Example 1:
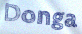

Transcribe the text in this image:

Donga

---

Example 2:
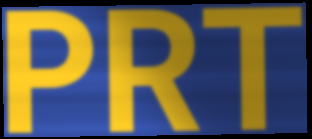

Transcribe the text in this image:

PRT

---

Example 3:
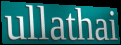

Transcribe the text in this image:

ullathai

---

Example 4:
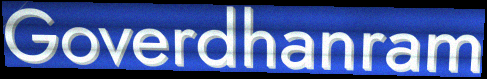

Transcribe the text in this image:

Goverdhanram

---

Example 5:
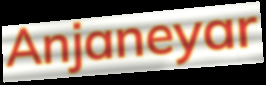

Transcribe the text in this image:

Anjaneyar